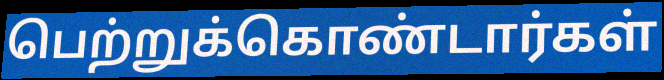
பெற்றுக்கொண்டார்கள்